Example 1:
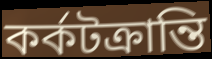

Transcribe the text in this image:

কর্কটক্রান্তি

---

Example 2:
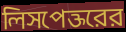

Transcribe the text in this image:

লিসপেক্তরের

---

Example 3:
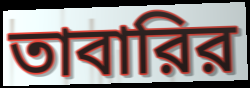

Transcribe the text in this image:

তাবারির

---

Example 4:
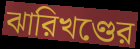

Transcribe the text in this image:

ঝারিখণ্ডের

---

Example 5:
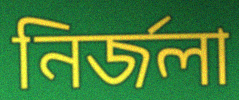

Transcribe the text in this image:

নির্জলা